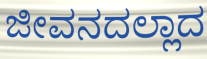
ಜೀವನದಲ್ಲಾದ